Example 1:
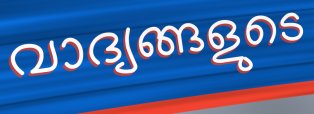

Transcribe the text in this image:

വാദ്യങ്ങളുടെ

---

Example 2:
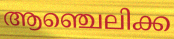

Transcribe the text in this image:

ആഞ്ചെലിക്ക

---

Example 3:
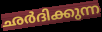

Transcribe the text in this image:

ഛർദിക്കുന്ന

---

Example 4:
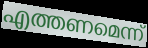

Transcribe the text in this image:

എത്തണമെന്ന്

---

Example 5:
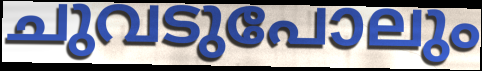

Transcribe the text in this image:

ചുവടുപോലും